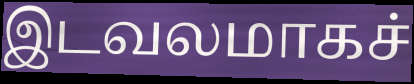
இடவலமாகச்